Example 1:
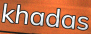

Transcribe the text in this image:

khadas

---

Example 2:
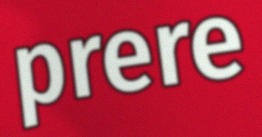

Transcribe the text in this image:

prere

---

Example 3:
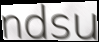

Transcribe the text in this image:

ndsu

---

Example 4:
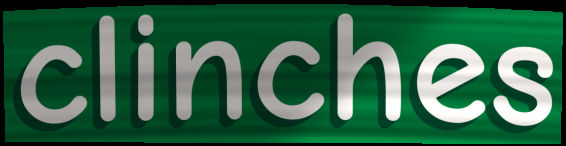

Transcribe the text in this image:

clinches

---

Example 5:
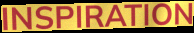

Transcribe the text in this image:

INSPIRATION